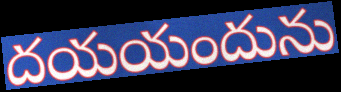
దయయందును